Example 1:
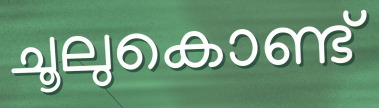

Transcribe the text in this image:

ചൂലുകൊണ്ട്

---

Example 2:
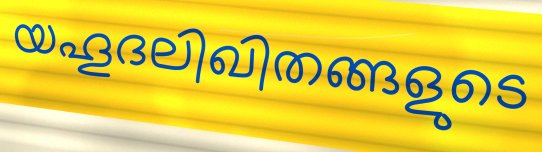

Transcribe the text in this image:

യഹൂദലിഖിതങ്ങളുടെ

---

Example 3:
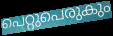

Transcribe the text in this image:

പെറ്റുപെരുകും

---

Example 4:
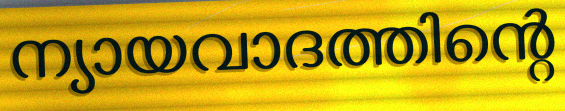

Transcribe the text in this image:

ന്യായവാദത്തിന്റെ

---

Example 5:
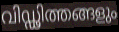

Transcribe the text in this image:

വിഡ്ഢിത്തങ്ങളും